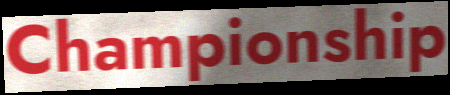
Championship